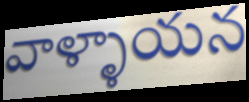
వాళ్ళాయన